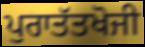
ਪੁਰਾਤੱਤਖੋਜੀ